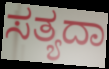
ಸತ್ಯದಾ